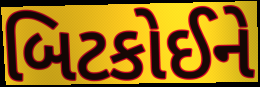
બિટકોઈને